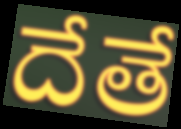
దేతే